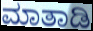
ಮಾತಾಡಿ